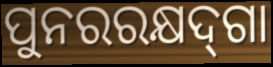
ପୁନରରକ୍ଷଦ୍‌ଗା